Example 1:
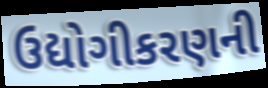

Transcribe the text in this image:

ઉદ્યોગીકરણની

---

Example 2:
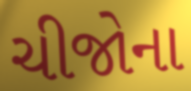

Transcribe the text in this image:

ચીજોના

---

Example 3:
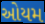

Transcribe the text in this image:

ઓયમ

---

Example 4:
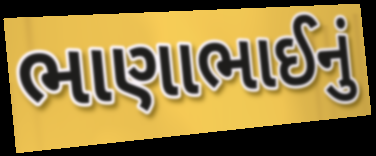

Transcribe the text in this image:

ભાણાભાઈનું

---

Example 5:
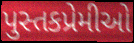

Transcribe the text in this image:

પુસ્તકપ્રેમીઓ